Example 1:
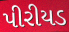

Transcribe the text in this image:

પીરીયડ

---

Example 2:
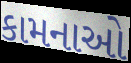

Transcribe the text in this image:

કામનાઓ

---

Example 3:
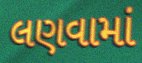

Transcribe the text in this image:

લણવામાં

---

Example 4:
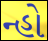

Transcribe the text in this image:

ન્હો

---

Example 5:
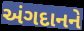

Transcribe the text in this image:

અંગદાનને